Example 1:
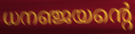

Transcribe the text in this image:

ധനഞ്ജയന്റെ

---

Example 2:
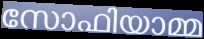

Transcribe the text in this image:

സോഫിയാമ്മ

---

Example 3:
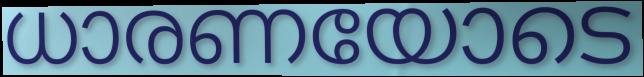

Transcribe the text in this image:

ധാരണയോടെ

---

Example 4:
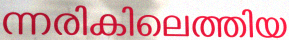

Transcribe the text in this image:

ന്നരികിലെത്തിയ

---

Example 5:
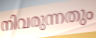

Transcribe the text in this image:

നിവരുന്നതും